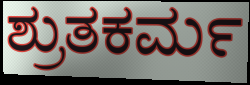
ಶ್ರುತಕರ್ಮ